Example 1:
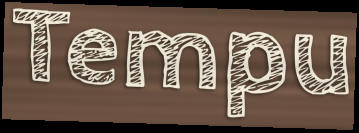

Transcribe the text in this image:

Tempu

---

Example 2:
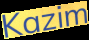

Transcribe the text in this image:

Kazim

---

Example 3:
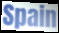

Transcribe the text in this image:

Spain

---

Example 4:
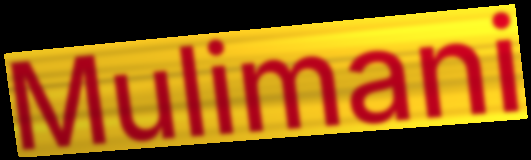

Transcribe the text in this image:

Mulimani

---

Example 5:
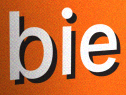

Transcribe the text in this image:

bie